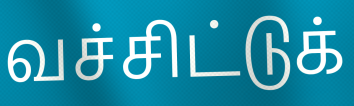
வச்சிட்டுக்